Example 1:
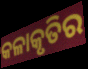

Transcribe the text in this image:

କଳାକୃତିର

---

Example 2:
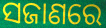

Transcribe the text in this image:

ସଜାଣରେ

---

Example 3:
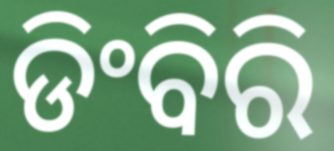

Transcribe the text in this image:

ଡିଂବିରି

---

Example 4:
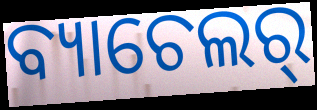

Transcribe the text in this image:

ବ୍ୟାଚେଲର୍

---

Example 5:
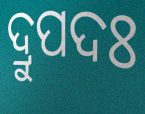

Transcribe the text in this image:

ଦ୍ରୁପଦଃ